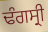
ਢੰਗਸ੍ਰੀ